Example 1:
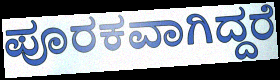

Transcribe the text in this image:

ಪೂರಕವಾಗಿದ್ದರೆ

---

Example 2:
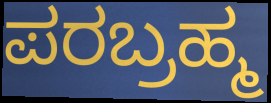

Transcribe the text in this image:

ಪರಬ್ರಹ್ಮ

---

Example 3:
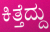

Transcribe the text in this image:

ಕಿತ್ತೆದ್ದು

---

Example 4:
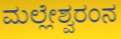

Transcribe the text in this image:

ಮಲ್ಲೇಶ್ವರಂನ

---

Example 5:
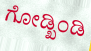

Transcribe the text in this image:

ಗೋಡ್ಖಿಂಡಿ